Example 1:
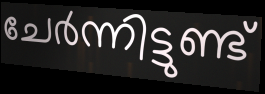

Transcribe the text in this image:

ചേർന്നിട്ടുണ്ട്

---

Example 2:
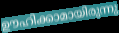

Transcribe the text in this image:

ഊഹിക്കാമായിരുന്നു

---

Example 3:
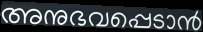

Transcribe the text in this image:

അനുഭവപ്പെടാൻ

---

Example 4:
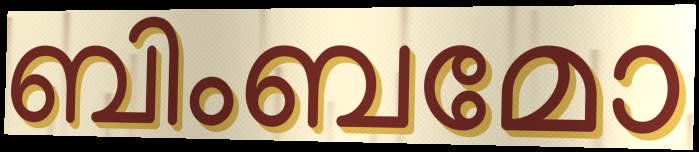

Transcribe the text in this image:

ബിംബമോ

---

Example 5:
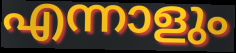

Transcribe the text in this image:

എന്നാളും